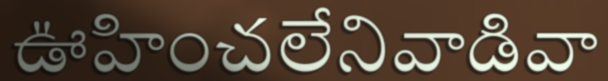
ఊహించలేనివాడివా